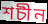
শচীন